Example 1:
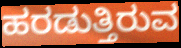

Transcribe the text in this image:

ಹರಡುತ್ತಿರುವ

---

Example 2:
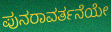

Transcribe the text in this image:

ಪುನರಾವರ್ತನೆಯೇ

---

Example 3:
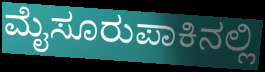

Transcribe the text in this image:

ಮೈಸೂರುಪಾಕಿನಲ್ಲಿ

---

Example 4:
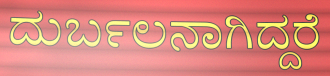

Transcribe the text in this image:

ದುರ್ಬಲನಾಗಿದ್ದರೆ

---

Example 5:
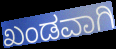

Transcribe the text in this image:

ಖಂಡವಾಗಿ